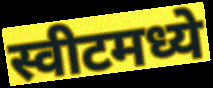
स्वीटमध्ये